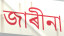
জাৰীনা